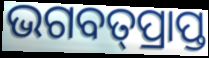
ଭଗବତ୍‌ପ୍ରାପ୍ତ